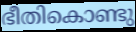
ഭീതികൊണ്ടു